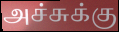
அச்சுக்கு